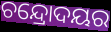
ଚନ୍ଦ୍ରୋଦୟର